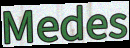
Medes